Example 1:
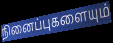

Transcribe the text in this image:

நினைப்புகளையும்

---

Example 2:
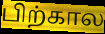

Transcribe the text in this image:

பிற்கால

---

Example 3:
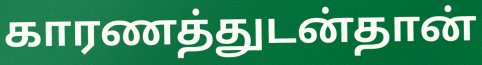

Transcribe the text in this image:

காரணத்துடன்தான்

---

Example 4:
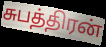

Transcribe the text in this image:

சுபத்திரன்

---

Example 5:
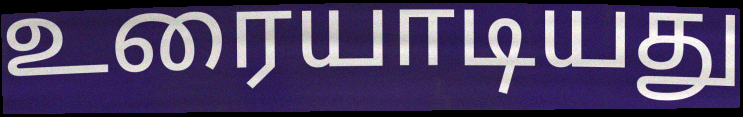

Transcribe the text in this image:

உரையாடியது